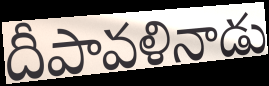
దీపావళినాడు